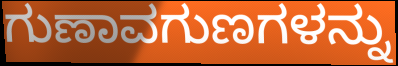
ಗುಣಾವಗುಣಗಳನ್ನು